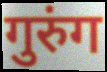
गुरुंग